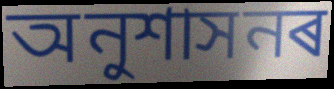
অনুশাসনৰ